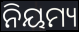
ନିୟମ୍ୟ